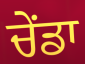
ਚੇਂਡਾ